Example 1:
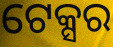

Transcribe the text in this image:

ଟେକ୍ସର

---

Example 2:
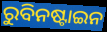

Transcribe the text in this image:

ରୁବିନଷ୍ଟାଇନ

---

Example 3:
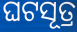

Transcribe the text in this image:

ଘଟସୂତ୍ର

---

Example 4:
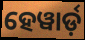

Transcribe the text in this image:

ହେୱାର୍ଡ଼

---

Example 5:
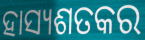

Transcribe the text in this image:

ହାସ୍ୟଶତକର